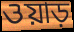
ওয়াড়